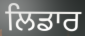
ਲਿਡਾਰ